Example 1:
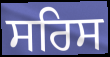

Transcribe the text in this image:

ਸਰਿਸ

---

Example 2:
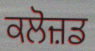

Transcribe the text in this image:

ਕਲੋਜ਼ਡ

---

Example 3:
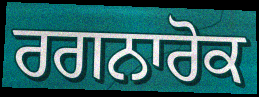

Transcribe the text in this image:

ਰਗਨਾਰੋਕ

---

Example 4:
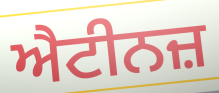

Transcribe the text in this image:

ਐਟੀਨਜ਼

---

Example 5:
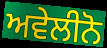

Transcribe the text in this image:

ਅਵੇਲੀਨੋ